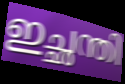
ഇച്ഛന്തി